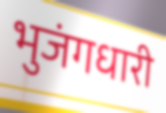
भुजंगधारी